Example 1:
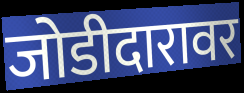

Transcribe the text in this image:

जोडीदारावर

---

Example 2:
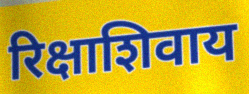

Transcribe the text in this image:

रिक्षाशिवाय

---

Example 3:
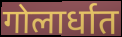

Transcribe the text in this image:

गोलार्धात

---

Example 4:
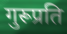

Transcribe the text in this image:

गुरूप्रति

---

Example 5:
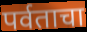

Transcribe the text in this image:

पर्वताचा